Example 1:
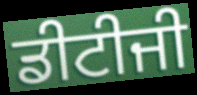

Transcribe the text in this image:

ਡੀਟੀਜੀ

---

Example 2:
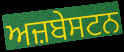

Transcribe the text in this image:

ਅਜ਼ਬੇਸਟਨ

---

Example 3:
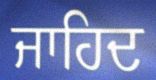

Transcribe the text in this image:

ਜਾਹਿਦ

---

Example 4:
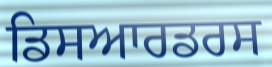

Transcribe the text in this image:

ਡਿਸਆਰਡਰਸ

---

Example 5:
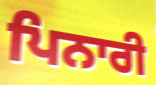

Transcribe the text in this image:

ਪਿਨਾਰੀ